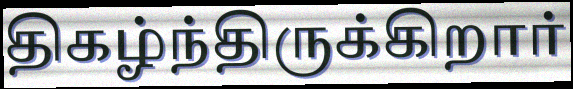
திகழ்ந்திருக்கிறார்